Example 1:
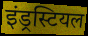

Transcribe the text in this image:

इंड्रस्टियल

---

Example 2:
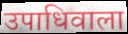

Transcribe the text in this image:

उपाधिवाला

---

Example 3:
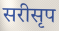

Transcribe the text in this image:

सरीसृप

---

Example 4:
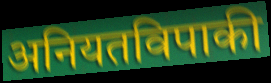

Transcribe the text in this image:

अनियतविपाकी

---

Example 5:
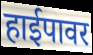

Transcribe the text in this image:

हाईपावर